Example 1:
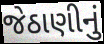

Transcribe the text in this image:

જેઠાણીનું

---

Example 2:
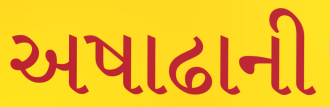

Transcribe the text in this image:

અષાઢાની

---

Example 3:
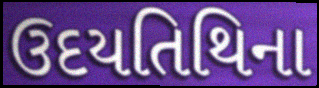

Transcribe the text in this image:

ઉદયતિથિના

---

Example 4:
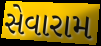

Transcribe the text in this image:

સેવારામ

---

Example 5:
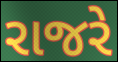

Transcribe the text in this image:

રાજરે